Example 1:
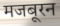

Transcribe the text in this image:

मजबूरन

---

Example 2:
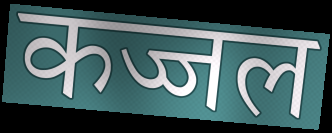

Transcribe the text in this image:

कज्जल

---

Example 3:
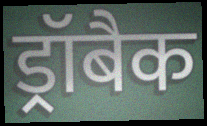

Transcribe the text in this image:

ड्रॉबैक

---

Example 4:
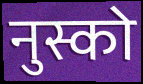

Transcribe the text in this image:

नुस्को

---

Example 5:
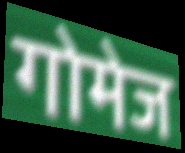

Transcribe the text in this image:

गोमेज